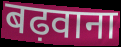
बढ़वाना